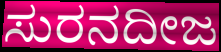
ಸುರನದೀಜ